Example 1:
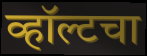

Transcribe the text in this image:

व्हॉल्टचा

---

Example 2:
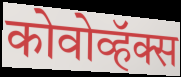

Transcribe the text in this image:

कोवोव्हॅक्स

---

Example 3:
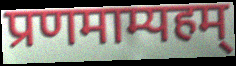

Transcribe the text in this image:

प्रणमाम्यहम्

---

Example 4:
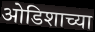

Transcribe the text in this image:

ओडिशाच्या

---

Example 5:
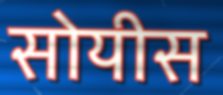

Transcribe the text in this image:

सोयीस